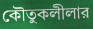
কৌতুকলীলার